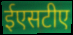
ईएसटीए